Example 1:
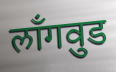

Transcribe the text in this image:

लाँगवुड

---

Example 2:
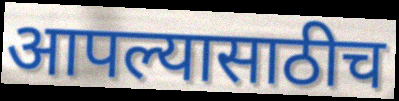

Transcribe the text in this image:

आपल्यासाठीच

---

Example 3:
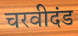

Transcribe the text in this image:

चरवीदंड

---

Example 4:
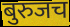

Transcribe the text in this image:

बुरुजच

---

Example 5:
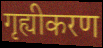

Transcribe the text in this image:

गृह्यीकरण